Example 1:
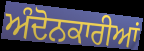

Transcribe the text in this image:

ਅੰਦੋਨਕਾਰੀਆਂ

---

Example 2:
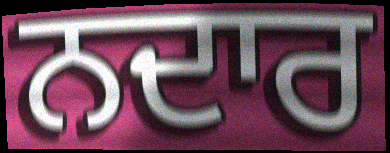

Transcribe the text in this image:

ਨਦਾਰ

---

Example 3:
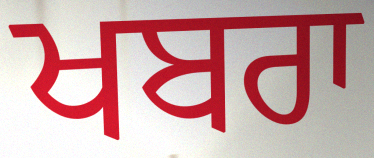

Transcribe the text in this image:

ਖਬਰਾ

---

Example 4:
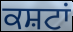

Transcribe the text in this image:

ਕਸ਼ਟਾਂ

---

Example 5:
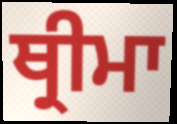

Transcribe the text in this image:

ਥ੍ਰੀਮਾ